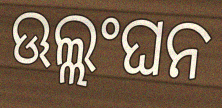
ଊଲ୍ଲଂଘନ